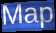
Map